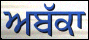
ਅਬੱਕਾ